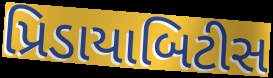
પ્રિડાયાબિટીસ